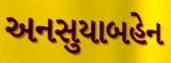
અનસુયાબહેન